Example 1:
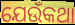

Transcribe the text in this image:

ଯେଉଁକଥା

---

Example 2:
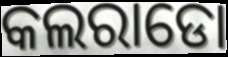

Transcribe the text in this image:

କଲରାଡୋ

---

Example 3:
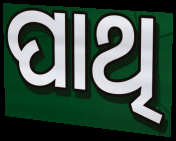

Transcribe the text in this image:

ପାଥି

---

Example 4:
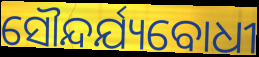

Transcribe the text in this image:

ସୌନ୍ଦର୍ଯ୍ୟବୋଧୀ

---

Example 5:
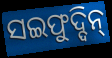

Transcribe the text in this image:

ସଇଫୁଦ୍ଦିନ୍